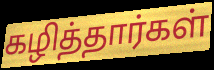
கழித்தார்கள்